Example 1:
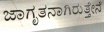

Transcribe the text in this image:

ಜಾಗೃತನಾಗಿರುತ್ತೇನೆ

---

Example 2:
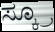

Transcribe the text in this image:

ಸ್ಕ್ರೂ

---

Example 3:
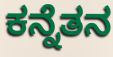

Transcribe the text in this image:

ಕನ್ನೆತನ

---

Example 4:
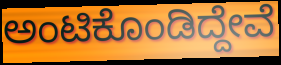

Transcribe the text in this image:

ಅಂಟಿಕೊಂಡಿದ್ದೇವೆ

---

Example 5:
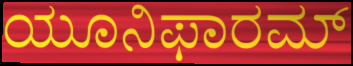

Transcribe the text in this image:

ಯೂನಿಫಾರಮ್